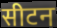
सीटन